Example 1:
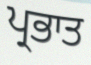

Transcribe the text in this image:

ਪ੍ਰਭਾਤ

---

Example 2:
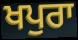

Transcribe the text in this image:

ਖਪੁਰਾ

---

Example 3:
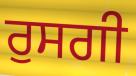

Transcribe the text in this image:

ਰੁਸਗੀ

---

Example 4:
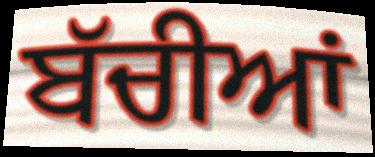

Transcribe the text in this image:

ਬੱਚੀਆਂ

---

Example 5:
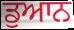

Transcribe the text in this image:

ਡੁਆਨ